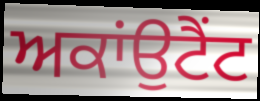
ਅਕਾਂਉਟੈਂਟ